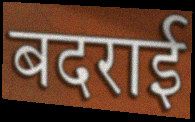
बदराई